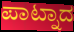
ಪಾಟ್ನಾದ